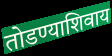
तोडण्याशिवाय